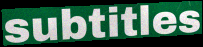
subtitles